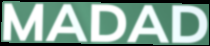
MADAD